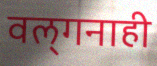
वल्गनाही